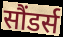
सौंडर्स